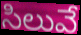
సిలువే